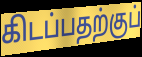
கிடப்பதற்குப்